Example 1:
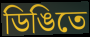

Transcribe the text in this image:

ডিঙিতে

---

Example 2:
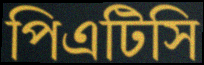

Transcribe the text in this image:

পিএটিসি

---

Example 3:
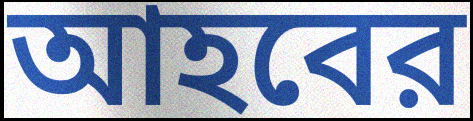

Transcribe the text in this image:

আহবের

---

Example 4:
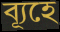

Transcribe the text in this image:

ব্যূহে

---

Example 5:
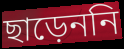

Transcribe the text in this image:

ছাড়েননি